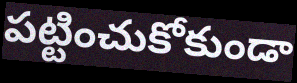
పట్టించుకోకుండా